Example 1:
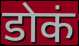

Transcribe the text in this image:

डोकं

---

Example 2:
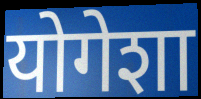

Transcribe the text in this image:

योगेशा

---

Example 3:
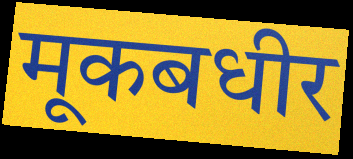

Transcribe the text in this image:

मूकबधीर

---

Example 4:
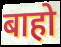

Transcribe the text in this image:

बाहो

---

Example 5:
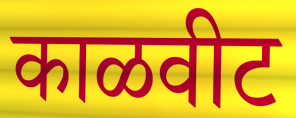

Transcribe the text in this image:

काळवीट